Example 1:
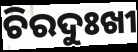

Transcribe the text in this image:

ଚିରଦୁଃଖୀ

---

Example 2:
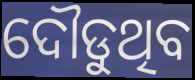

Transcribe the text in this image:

ଦୌଡୁଥିବ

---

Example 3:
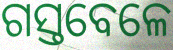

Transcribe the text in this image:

ଗସ୍ତବେଳେ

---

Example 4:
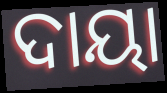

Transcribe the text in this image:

ଦାୟା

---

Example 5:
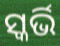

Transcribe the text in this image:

ସ୍କର୍ଭି